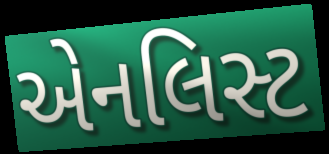
એનલિસ્ટ